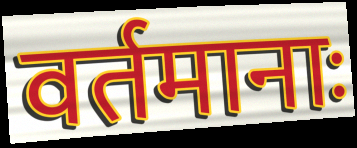
वर्तमानाः